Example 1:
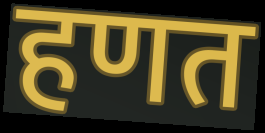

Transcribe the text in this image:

हणत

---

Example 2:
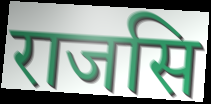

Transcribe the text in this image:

राजसि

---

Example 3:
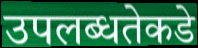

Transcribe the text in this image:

उपलब्धतेकडे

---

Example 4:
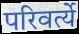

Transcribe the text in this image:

परिवर्त्ये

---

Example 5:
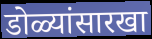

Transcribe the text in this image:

डोळ्यांसारखा